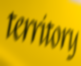
territory